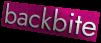
backbite